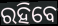
ରହିବେ